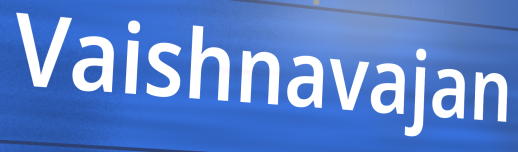
Vaishnavajan